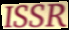
ISSR